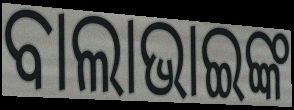
ବାଲାଭାଇଙ୍କ